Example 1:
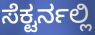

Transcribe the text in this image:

ಸೆಕ್ಟರ್ನಲ್ಲಿ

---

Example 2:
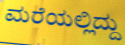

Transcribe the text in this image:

ಮರೆಯಲ್ಲಿದ್ದು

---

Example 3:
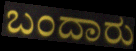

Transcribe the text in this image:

ಬಂದಾರು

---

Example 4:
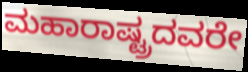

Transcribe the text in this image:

ಮಹಾರಾಷ್ಟ್ರದವರೇ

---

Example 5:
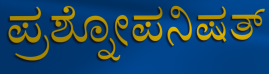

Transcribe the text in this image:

ಪ್ರಶ್ನೋಪನಿಷತ್